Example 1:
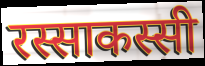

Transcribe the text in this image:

रस्साकस्सी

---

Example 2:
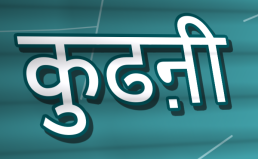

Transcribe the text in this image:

कुढऩी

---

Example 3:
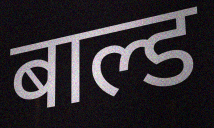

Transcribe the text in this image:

बाल्ड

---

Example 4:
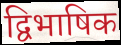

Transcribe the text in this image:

द्विभाषिक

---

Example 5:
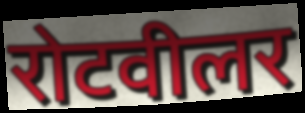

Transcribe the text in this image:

रोटवीलर